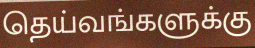
தெய்வங்களுக்கு